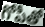
గోపీతో